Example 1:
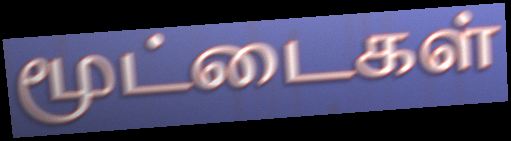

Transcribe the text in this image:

மூட்டைகள்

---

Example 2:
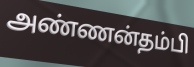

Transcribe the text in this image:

அண்ணன்தம்பி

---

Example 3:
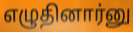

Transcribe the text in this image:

எழுதினார்னு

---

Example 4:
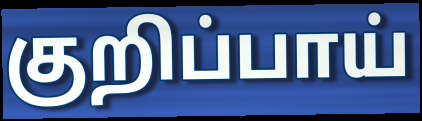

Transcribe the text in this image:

குறிப்பாய்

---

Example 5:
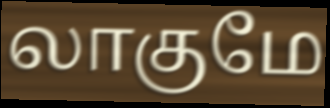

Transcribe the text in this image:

லாகுமே